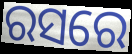
ରସରେ